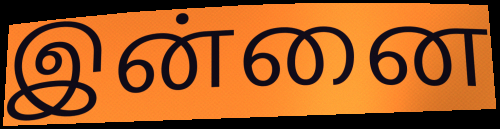
இன்னை